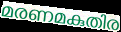
മരണമകുതിര